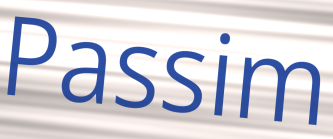
Passim